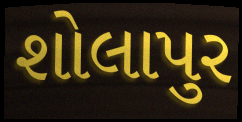
શોલાપુર